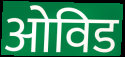
ओविड